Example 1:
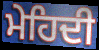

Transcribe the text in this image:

ਮੇਹਿਦੀ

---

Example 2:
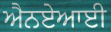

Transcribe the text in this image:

ਐਨਏਆਈ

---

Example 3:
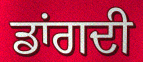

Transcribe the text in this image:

ਡਾਂਗਦੀ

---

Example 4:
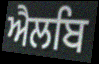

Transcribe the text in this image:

ਐਲਬਿ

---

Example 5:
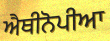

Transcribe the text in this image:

ਐਥੀਨੋਪੀਆ